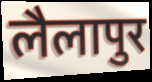
लैलापुर